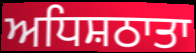
ਅਧਿਸ਼ਠਾਤਾ